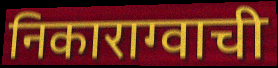
निकाराग्वाची